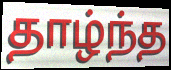
தாழ்ந்த